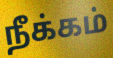
நீக்கம்